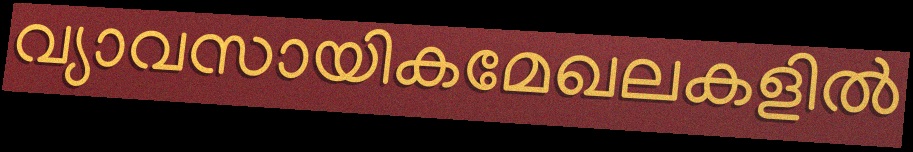
വ്യാവസായികമേഖലകളിൽ